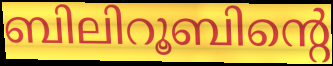
ബിലിറൂബിന്റെ